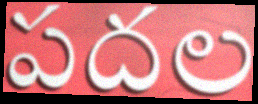
పదల